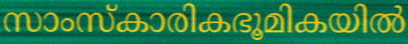
സാംസ്കാരികഭൂമികയിൽ